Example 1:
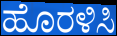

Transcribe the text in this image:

ಹೊರಳಿಸಿ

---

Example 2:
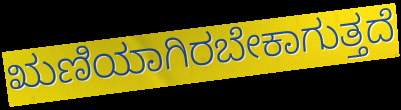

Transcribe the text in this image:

ಋಣಿಯಾಗಿರಬೇಕಾಗುತ್ತದೆ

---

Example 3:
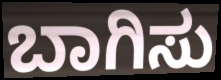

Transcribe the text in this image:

ಬಾಗಿಸು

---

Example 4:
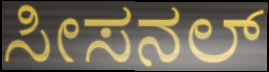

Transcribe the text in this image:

ಸೀಸನಲ್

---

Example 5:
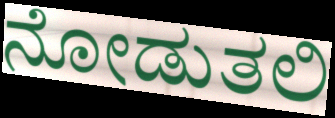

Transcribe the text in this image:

ನೋಡುತಲಿ